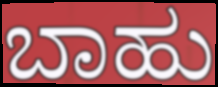
ಬಾಹು